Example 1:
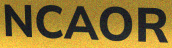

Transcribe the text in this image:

NCAOR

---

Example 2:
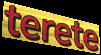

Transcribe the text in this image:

terete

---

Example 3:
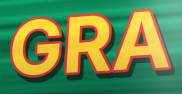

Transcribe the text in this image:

GRA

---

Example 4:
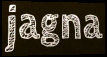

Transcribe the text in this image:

jagna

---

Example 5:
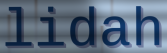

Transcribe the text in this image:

lidah